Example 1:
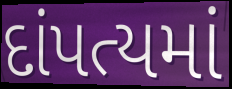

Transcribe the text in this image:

દાંપત્યમાં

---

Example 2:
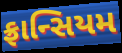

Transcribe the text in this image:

ફ્રાન્સિયમ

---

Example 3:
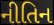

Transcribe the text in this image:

નીતિન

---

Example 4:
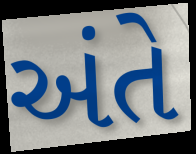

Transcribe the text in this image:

અંતે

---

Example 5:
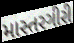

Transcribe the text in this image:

માસ્તરગીરી